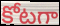
కోటగా